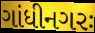
ગાંધીનગરઃ